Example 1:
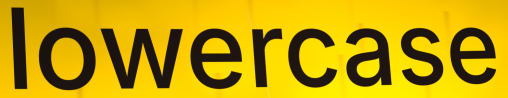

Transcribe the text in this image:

lowercase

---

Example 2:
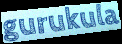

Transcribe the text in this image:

gurukula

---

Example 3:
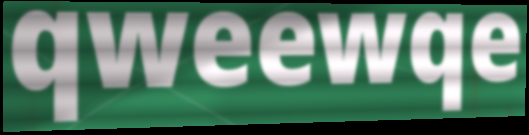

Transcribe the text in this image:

qweewqe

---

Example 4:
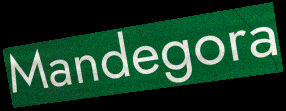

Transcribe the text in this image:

Mandegora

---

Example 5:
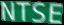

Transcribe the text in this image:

NTSE